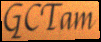
GCTam